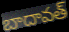
బాదావత్